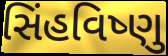
સિંહવિષ્ણુ